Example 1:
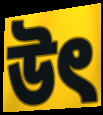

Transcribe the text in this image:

উৎ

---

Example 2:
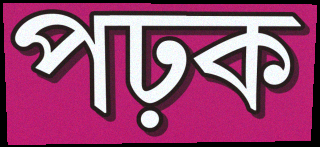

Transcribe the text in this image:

পঢ়ক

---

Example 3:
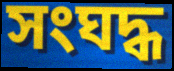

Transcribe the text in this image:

সংঘদ্ধ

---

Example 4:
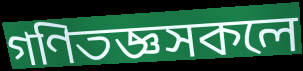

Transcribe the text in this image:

গণিতজ্ঞসকলে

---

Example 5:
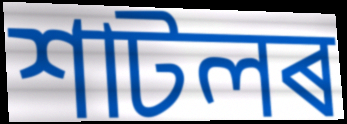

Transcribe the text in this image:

শাটলৰ